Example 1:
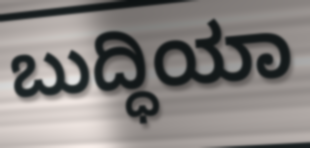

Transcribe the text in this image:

ಬುದ್ಧಿಯಾ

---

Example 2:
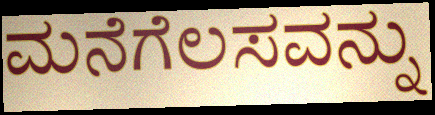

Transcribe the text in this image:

ಮನೆಗೆಲಸವನ್ನು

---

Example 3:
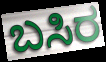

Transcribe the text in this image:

ಬಸಿರ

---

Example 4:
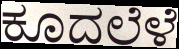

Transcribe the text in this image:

ಕೂದಲೆಳೆ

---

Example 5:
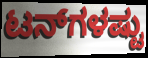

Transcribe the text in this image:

ಟನ್‌ಗಳಷ್ಟು